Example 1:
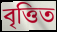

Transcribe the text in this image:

বৃত্তিত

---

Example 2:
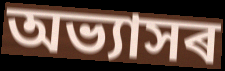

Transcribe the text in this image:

অভ্যাসৰ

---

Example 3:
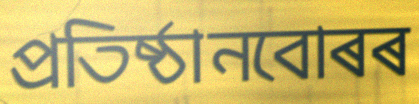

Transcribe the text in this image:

প্ৰতিষ্ঠানবোৰৰ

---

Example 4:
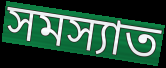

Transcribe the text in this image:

সমস্যাত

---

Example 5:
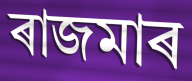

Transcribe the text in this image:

ৰাজমাৰ